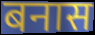
बनास